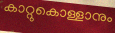
കാറ്റുകൊള്ളാനും